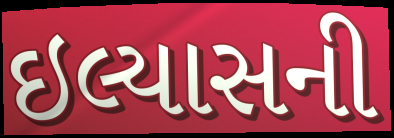
ઇલ્યાસની